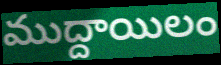
ముద్దాయిలం